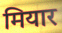
मियार